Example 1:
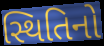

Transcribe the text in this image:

સ્થિતિનો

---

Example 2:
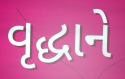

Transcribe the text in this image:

વૃદ્ધાને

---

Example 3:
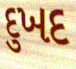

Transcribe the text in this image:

દુખદ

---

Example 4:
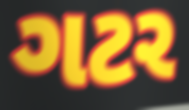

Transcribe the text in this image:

ગટર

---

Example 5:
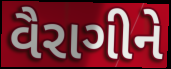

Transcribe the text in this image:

વૈરાગીને